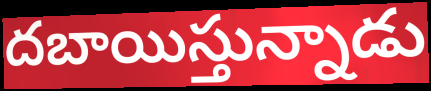
దబాయిస్తున్నాడు